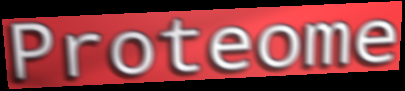
Proteome